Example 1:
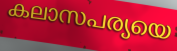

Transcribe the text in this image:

കലാസപര്യയെ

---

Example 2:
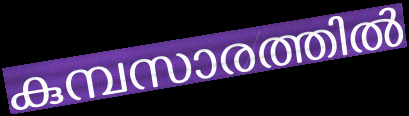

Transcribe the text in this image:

കുമ്പസാരത്തിൽ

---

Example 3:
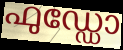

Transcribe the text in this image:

ഫുഡ്ഡോ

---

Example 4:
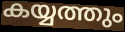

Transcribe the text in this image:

കയ്യത്തും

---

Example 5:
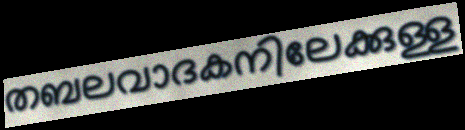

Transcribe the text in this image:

തബലവാദകനിലേക്കുള്ള